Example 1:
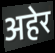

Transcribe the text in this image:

अहेर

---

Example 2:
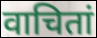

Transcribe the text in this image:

वाचितां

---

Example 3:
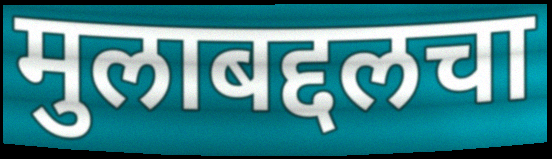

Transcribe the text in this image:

मुलाबद्दलचा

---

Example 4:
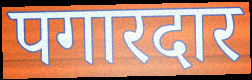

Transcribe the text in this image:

पगारदार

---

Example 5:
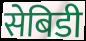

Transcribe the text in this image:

सेबिडी